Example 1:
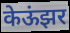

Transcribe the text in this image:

केऊंझर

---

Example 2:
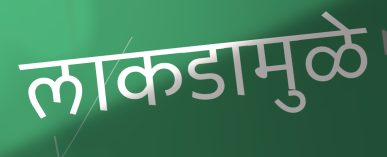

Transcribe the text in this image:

लाकडामुळे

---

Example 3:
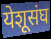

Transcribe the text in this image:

येशूसंघ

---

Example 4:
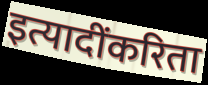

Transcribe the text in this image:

इत्यादींकरिता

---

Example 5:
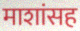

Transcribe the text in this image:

माशांसह